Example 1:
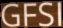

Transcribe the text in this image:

GFSI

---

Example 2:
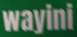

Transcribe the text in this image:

wayini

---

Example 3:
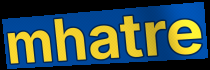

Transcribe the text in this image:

mhatre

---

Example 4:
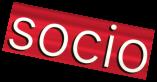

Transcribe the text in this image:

socio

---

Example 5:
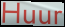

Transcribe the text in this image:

Huur